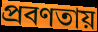
প্রবণতায়